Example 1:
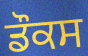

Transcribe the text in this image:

ਡੌਕਸ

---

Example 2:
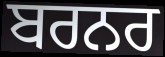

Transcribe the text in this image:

ਬਰਨਰ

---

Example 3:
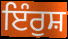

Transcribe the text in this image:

ਇੰਰੁਸ਼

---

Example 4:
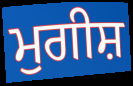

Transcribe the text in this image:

ਮੁਗੀਸ਼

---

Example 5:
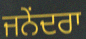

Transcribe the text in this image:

ਜਨੇਂਦਰਾ